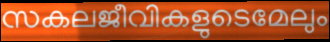
സകലജീവികളുടെമേലും